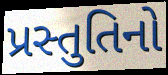
પ્રસ્તુતિનો